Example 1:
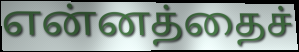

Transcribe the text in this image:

என்னத்தைச்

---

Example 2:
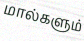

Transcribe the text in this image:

மால்களும்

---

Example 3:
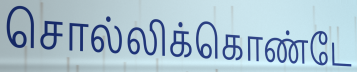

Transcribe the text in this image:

சொல்லிக்கொண்டே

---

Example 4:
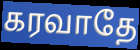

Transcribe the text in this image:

கரவாதே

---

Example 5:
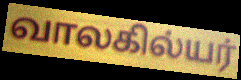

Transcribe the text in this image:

வாலகில்யர்